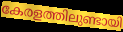
കേരളത്തിലുണ്ടായി